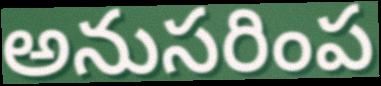
అనుసరింప